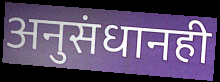
अनुसंधानही